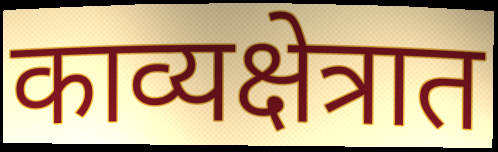
काव्यक्षेत्रात